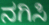
ನಗಿಸಿ